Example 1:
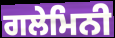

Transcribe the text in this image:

ਗਲੇਮਿਨੀ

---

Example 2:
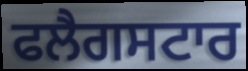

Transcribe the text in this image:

ਫਲੈਗਸਟਾਰ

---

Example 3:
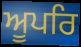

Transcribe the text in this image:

ਅੂਪਰਿ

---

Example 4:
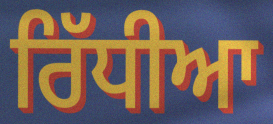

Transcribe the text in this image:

ਰਿੱਧੀਆ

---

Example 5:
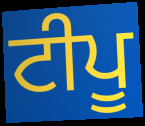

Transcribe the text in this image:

ਟੀਪੂ